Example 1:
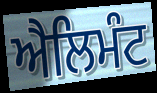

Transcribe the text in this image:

ਐਲਿਮੰਟ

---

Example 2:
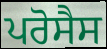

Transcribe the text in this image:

ਪਰੋਸੈਸ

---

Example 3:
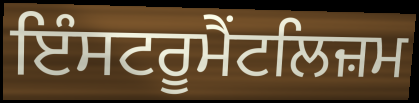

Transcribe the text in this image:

ਇੰਸਟਰੂਮੈਂਟਲਿਜ਼ਮ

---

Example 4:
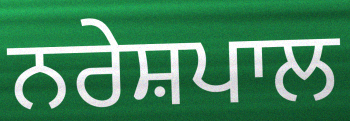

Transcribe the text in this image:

ਨਰੇਸ਼ਪਾਲ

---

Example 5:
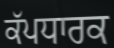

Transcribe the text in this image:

ਕੱਪਧਾਰਕ